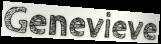
Genevieve